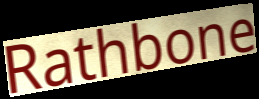
Rathbone